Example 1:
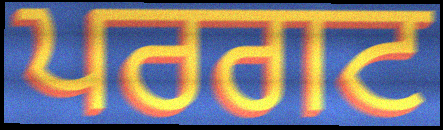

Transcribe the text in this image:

ਪਰਗਟ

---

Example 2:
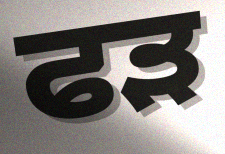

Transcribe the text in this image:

ਫੜ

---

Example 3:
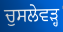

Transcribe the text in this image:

ਚੁਸਲੇਵੜ੍ਹ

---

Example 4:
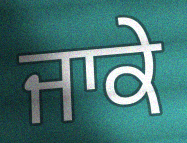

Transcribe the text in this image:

ਜਾਕੇ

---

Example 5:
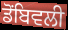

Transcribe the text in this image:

ਡੋਂਬਿਵਲੀ